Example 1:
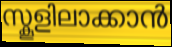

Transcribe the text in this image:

സ്കൂളിലാക്കാൻ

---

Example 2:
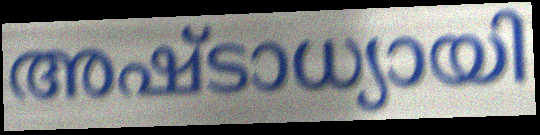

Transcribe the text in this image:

അഷ്ടാധ്യായി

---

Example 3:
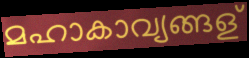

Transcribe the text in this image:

മഹാകാവ്യങ്ങള്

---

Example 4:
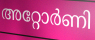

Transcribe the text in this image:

അറ്റോർണി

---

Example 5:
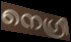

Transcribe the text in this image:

നെഗ്രി